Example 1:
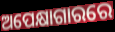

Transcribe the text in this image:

ଅପେକ୍ଷାଗାରରେ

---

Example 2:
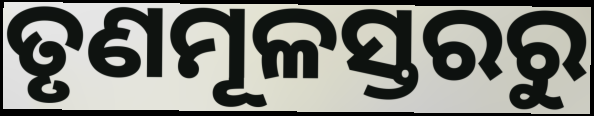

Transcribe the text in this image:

ତୃଣମୂଳସ୍ତରରୁ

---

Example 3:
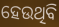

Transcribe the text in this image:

ହେଉଥିବି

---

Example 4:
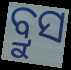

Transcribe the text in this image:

ବ୍ରୁସ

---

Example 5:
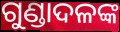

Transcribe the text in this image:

ଗୁଣ୍ଡାଦଳଙ୍କ